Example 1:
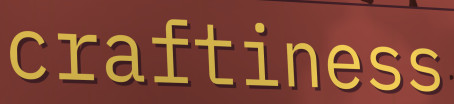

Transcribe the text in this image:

craftiness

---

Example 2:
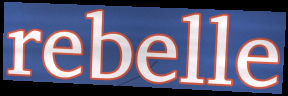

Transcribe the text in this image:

rebelle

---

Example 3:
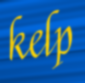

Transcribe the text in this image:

kelp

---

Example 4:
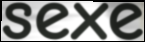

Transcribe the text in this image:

sexe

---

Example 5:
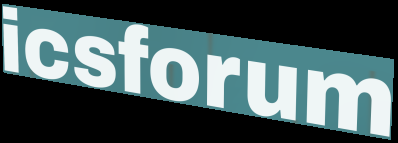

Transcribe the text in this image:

icsforum